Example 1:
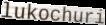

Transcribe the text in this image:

lukochuri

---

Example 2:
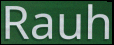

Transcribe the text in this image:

Rauh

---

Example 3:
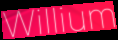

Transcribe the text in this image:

Willium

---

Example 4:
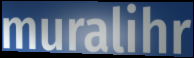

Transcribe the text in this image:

muralihr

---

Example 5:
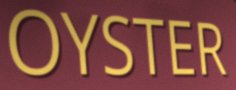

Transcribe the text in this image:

OYSTER